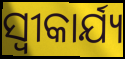
ସ୍ଵୀକାର୍ଯ୍ୟ